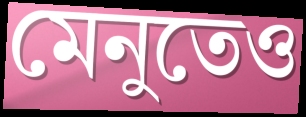
মেনুতেও